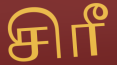
சிரீ